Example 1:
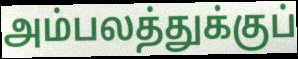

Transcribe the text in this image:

அம்பலத்துக்குப்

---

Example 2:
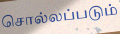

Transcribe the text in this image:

சொல்லப்படும்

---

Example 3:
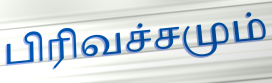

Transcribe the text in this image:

பிரிவச்சமும்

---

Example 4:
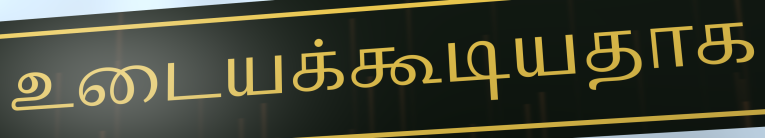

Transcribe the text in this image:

உடையக்கூடியதாக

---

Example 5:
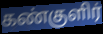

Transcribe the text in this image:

கண்குளிர்